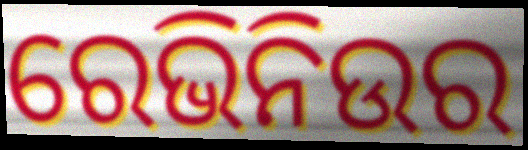
ରେଭିନିଉର